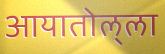
आयातोल्ला